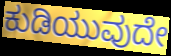
ಕುಡಿಯುವುದೇ